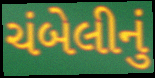
ચંબેલીનું